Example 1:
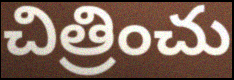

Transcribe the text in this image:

చిత్రించు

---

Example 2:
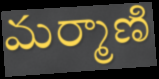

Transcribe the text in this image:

మర్మాణి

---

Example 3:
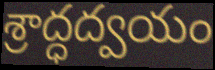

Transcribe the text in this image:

శ్రాద్ధద్వయం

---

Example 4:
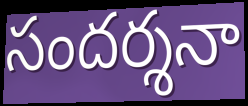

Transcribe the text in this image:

సందర్శనా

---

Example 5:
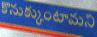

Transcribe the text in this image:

కొనుక్కుంటామని